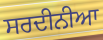
ਸਰਦੀਨੀਆ